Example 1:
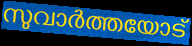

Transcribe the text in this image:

സുവാർത്തയോട്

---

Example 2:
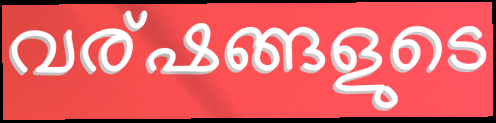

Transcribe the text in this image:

വര്ഷങ്ങളുടെ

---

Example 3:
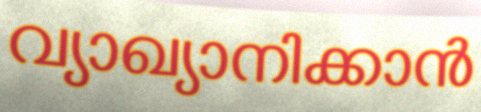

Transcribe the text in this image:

വ്യാഖ്യാനിക്കാൻ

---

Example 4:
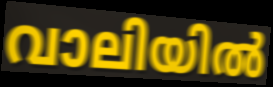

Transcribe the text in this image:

വാലിയിൽ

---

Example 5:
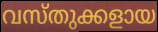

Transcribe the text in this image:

വസ്തുക്കളായ